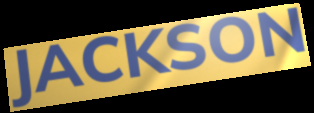
JACKSON